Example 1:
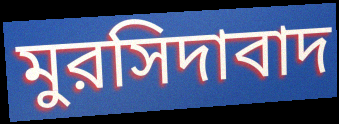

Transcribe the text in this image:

মুরসিদাবাদ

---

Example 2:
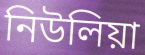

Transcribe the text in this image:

নিউলিয়া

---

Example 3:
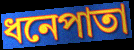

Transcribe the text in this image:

ধনেপাতা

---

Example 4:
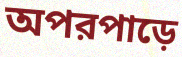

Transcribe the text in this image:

অপরপাড়ে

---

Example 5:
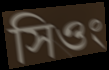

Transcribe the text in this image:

সিওং